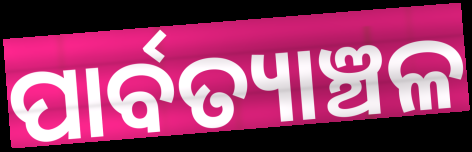
ପାର୍ବତ୍ୟାଞ୍ଚଳ